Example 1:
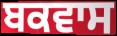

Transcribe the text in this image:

ਬਕਵਾਸ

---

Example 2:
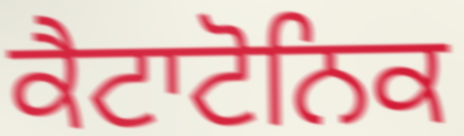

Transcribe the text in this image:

ਕੈਟਾਟੋਨਿਕ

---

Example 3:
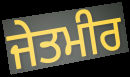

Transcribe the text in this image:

ਜੇਤਮੀਰ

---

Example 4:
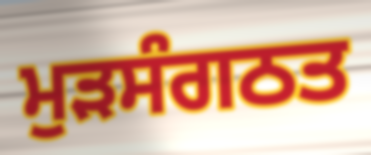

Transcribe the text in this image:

ਮੁੜਸੰਗਠਤ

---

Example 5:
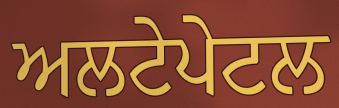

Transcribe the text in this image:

ਅਲਟੇਪੇਟਲ